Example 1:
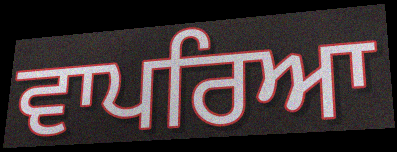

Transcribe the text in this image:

ਵਾਪਰਿਆ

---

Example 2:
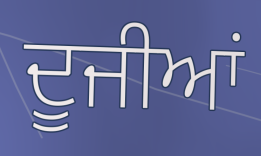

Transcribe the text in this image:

ਦੂਜੀਆਂ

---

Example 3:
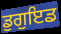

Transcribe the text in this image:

ਡੁਗੁਇਡ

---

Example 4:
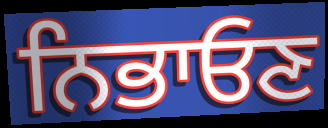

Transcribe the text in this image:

ਨਿਭਾਓਣ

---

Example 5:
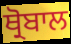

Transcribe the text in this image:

ਥ੍ਰੋਬਾਲ